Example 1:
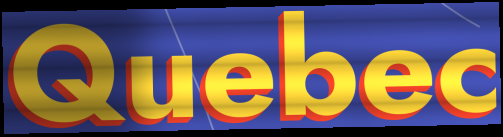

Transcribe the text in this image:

Quebec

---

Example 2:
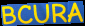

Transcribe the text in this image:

BCURA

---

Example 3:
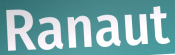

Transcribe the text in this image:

Ranaut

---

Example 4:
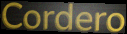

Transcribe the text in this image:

Cordero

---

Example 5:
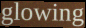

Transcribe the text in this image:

glowing